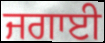
ਜਗਾਈ